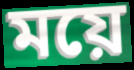
ময়ে